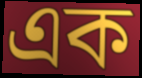
এক